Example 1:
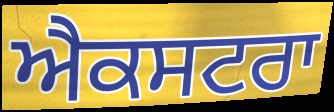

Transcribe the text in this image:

ਐਕਸਟਰਾ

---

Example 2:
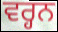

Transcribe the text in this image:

ਵਰ੍ਹਨ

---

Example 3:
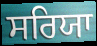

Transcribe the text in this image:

ਸਰਿਯਾ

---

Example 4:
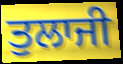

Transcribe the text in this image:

ਤੁਲਾਜੀ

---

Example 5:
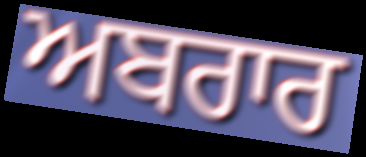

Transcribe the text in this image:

ਅਬਰਾਰ